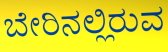
ಬೇರಿನಲ್ಲಿರುವ